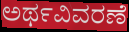
ಅರ್ಥವಿವರಣೆ